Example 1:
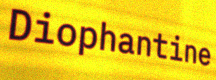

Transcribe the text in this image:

Diophantine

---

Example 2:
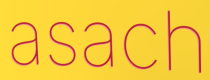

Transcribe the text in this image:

asach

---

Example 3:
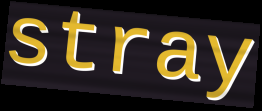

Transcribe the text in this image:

stray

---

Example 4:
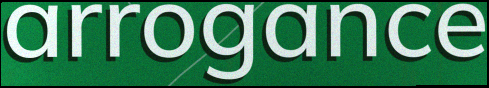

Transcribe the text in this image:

arrogance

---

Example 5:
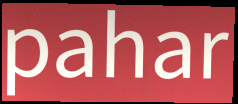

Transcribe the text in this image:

pahar